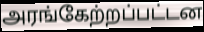
அரங்கேற்றப்பட்டன